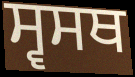
ਸ੍ਵਸਥ